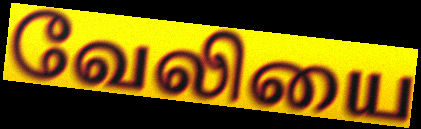
வேலியை